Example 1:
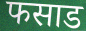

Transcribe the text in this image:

फसाड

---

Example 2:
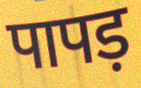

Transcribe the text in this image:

पापड़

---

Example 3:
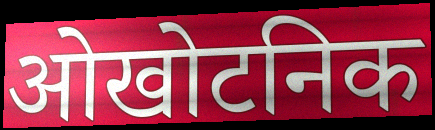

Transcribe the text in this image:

ओखोटनिक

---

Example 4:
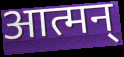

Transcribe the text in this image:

आत्मन्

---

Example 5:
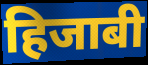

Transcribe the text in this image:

हिजाबी